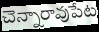
చెన్నారావుపేట